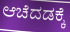
ಆಚೆದಡಕ್ಕೆ